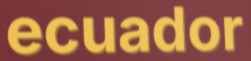
ecuador